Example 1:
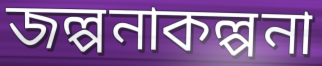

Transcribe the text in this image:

জল্পনাকল্পনা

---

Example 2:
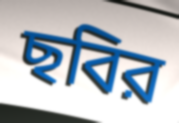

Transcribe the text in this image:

ছবির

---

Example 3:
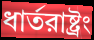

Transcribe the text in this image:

ধার্তরাষ্ট্রং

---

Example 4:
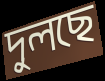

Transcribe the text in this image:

দুলছে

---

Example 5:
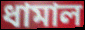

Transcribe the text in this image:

ধামাল